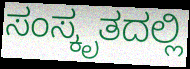
ಸಂಸ್ಕೃತದಲ್ಲಿ